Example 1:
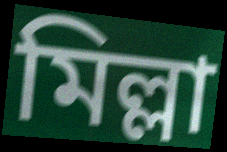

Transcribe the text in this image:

মিল্লা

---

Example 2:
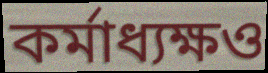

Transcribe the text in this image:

কর্মাধ্যক্ষও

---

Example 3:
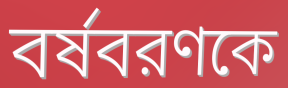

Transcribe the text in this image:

বর্ষবরণকে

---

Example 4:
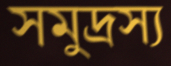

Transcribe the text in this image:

সমুদ্রস্য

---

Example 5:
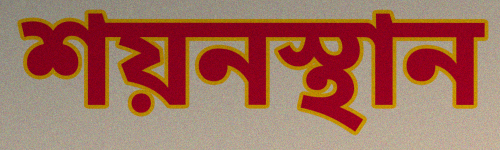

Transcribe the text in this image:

শয়নস্থান